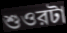
শুওরটা